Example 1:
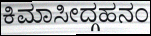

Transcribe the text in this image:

ಕಿಮಾಸೀದ್ಗಹನಂ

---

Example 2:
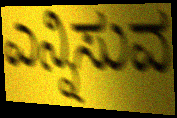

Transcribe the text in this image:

ಎನ್ನಿಸುವ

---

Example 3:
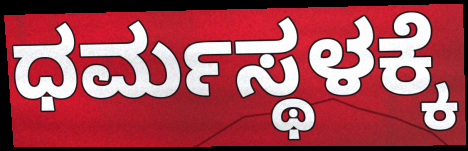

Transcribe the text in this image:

ಧರ್ಮಸ್ಥಳಕ್ಕೆ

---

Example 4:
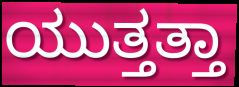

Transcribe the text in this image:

ಯುತ್ತತ್ತಾ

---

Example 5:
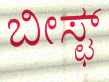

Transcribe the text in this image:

ಬೀಸ್ಟ್